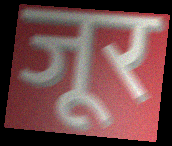
जूर